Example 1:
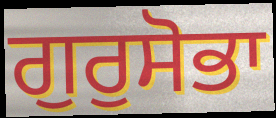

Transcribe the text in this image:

ਗੁਰੁਸੋਭਾ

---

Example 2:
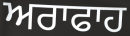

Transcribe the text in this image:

ਅਰਾਫਾਹ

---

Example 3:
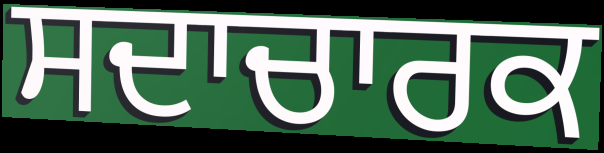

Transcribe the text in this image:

ਸਦਾਚਾਰਕ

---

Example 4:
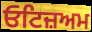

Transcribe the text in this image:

ਓਟਿਜ਼ਅਮ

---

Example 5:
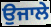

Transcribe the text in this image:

ਉਜਾਲੇ